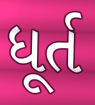
ધૂર્ત